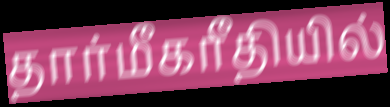
தார்மீகரீதியில்